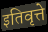
इतिवृत्ते